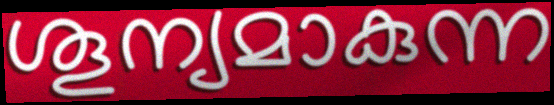
ശൂന്യമാകുന്ന